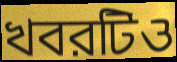
খবরটিও